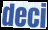
deci